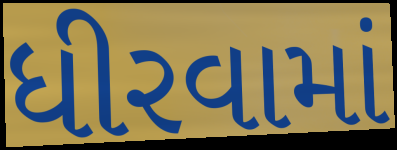
ધીરવામાં